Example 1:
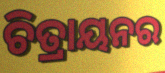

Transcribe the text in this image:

ଚିତ୍ରାୟନର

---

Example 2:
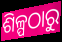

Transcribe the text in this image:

ଶିଳ୍ପଠାରୁ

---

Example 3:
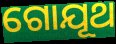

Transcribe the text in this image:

ଗୋଯୂଥ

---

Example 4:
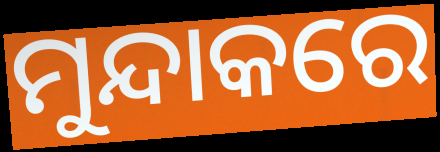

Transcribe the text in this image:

ମୁନ୍ଦାକରେ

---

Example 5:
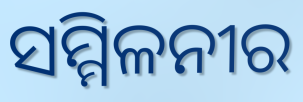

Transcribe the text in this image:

ସମ୍ମିଳନୀର